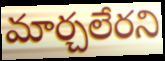
మార్చలేరని